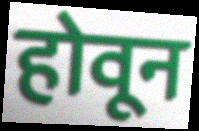
होवून